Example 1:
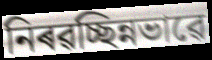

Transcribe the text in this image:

নিৰৱচ্ছিন্নভাৱে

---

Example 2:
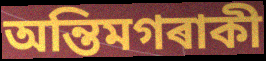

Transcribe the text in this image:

অন্তিমগৰাকী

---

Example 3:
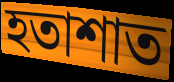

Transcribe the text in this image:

হতাশাত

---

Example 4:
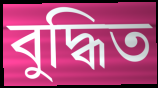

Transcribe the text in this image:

বুদ্ধিত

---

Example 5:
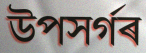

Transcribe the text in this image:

উপসৰ্গৰ